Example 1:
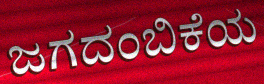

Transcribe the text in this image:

ಜಗದಂಬಿಕೆಯ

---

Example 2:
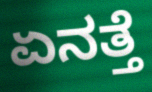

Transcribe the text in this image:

ಏನತ್ತೆ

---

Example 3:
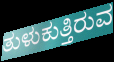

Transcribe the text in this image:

ತುಳುಕುತ್ತಿರುವ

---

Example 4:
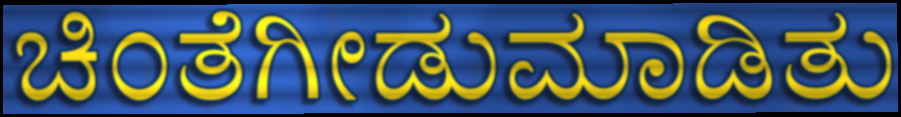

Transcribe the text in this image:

ಚಿಂತೆಗೀಡುಮಾಡಿತು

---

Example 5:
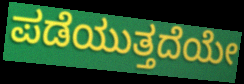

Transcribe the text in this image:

ಪಡೆಯುತ್ತದೆಯೇ